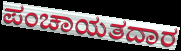
ಪಂಚಾಯತದಾರ